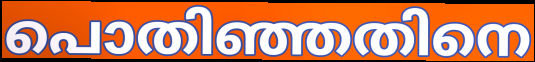
പൊതിഞ്ഞതിനെ